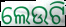
ଲେଉଟି